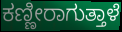
ಕಣ್ಣೀರಾಗುತ್ತಾಳೆ